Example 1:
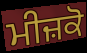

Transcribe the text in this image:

ਮੀਜ਼ਕੋ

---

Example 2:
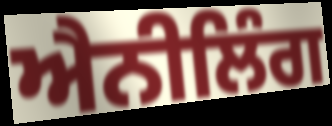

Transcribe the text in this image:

ਐਨੀਲਿੰਗ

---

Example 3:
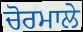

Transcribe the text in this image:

ਚੋਰਮਾਲੇ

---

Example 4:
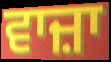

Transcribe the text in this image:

ਵਾਜ਼ਾ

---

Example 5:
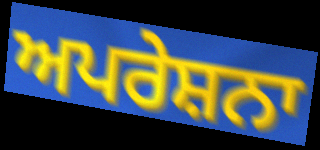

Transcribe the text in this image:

ਅਪਰੇਸ਼ਨਾ